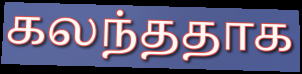
கலந்ததாக